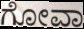
ಗೋವಾ